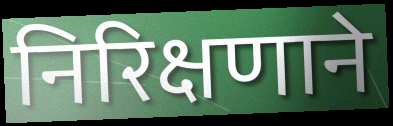
निरिक्षणाने